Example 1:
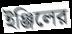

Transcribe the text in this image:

ইঞ্জিলের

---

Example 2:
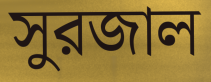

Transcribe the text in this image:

সুরজাল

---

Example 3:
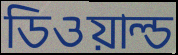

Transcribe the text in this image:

ডিওয়াল্ড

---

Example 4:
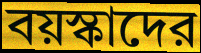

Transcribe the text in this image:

বয়স্কাদের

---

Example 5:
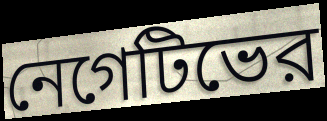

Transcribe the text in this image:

নেগেটিভের